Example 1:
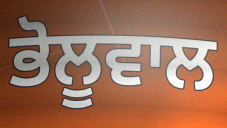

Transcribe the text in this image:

ਭੋਲੂਵਾਲ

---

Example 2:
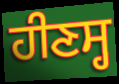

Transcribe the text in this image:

ਹੀਣਸ੍ਹ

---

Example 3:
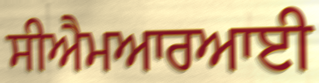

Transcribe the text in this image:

ਸੀਐਮਆਰਆਈ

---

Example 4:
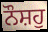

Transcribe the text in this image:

ਨੌਸ਼ਹੁ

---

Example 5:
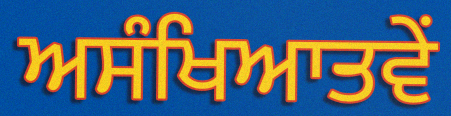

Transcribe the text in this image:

ਅਸੰਖਿਆਤਵੇਂ